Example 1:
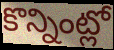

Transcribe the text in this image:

కొన్నింట్లో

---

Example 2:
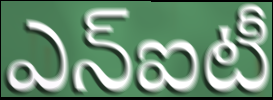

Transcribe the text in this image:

ఎన్ఐటీ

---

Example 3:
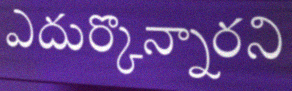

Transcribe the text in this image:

ఎదుర్కొన్నారని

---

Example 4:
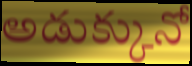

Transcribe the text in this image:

అడుక్కునో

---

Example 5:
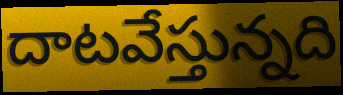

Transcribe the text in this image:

దాటవేస్తున్నది